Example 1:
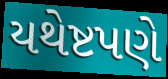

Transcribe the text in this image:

યથેષ્ટપણે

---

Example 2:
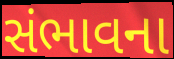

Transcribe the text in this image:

સંભાવના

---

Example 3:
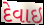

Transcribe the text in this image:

દેવાઇ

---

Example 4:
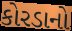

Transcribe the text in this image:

કોરડાનો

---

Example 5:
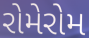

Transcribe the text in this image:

રોમેરોમ